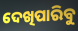
ଦେଖିପାରିବୁ